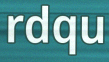
rdqu